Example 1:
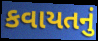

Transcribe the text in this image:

કવાયતનું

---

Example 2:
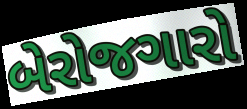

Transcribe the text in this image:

બેરોજગારો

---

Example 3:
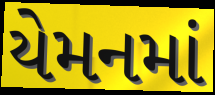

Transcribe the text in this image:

યેમનમાં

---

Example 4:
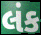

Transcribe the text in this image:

લંક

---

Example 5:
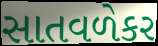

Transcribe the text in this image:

સાતવળેકર